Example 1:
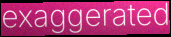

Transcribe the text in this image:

exaggerated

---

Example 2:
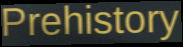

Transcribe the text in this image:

Prehistory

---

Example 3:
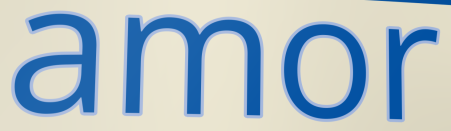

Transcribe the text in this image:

amor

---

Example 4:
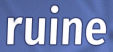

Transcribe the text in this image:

ruine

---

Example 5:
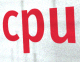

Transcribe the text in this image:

cpu